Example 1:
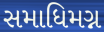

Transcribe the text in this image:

સમાધિમગ્ન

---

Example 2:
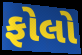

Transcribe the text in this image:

ફોલો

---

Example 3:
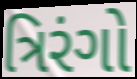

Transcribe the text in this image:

ત્રિરંગો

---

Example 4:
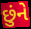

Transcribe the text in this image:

છુંને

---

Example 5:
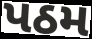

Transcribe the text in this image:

પઠમ